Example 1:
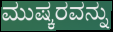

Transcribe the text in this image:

ಮುಷ್ಕರವನ್ನು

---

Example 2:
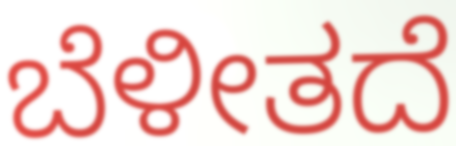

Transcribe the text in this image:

ಬೆಳೀತದೆ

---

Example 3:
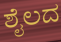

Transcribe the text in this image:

ಶೈಲದ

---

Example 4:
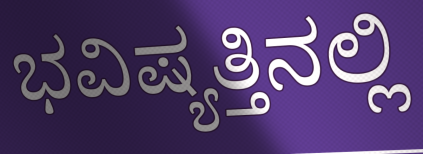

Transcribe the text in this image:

ಭವಿಷ್ಯತ್ತಿನಲ್ಲಿ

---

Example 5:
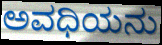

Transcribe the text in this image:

ಅವಧಿಯನು